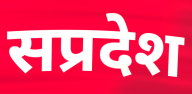
सप्रदेश